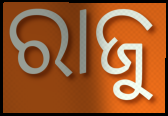
ରାଜୁ